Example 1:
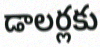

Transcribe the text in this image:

డాలర్లకు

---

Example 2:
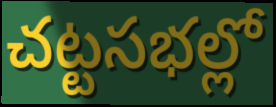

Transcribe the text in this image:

చట్టసభల్లో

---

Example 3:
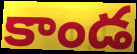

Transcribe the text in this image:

కాండ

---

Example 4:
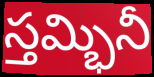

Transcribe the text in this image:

స్తమ్భినీ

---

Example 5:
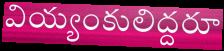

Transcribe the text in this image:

వియ్యంకులిద్దరూ